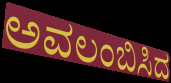
ಅವಲಂಬಿಸಿದ